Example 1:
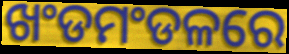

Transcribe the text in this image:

ଖଂଡମଂଡଳରେ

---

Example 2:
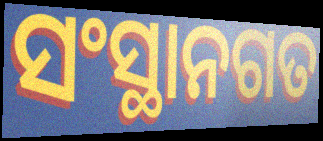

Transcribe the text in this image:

ସଂସ୍ଥାନଗତ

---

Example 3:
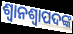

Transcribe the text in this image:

ଶ୍ୱାନଶ୍ୱାପଦଙ୍କ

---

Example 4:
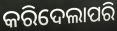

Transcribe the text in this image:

କରିଦେଲାପରି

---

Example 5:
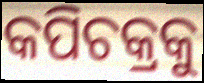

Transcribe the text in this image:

କପିଚକ୍ରକୁ